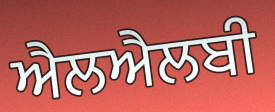
ਐਲਐਲਬੀ